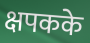
क्षपकके